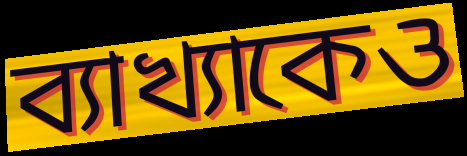
ব্যাখ্যাকেও